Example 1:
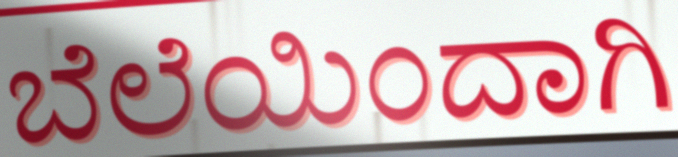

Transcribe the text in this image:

ಬೆಲೆಯಿಂದಾಗಿ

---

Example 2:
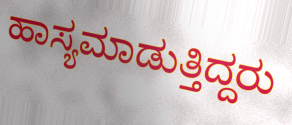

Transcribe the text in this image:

ಹಾಸ್ಯಮಾಡುತ್ತಿದ್ದರು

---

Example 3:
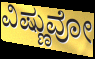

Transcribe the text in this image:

ವಿಷ್ಣುವೋ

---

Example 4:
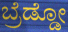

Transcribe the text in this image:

ಬ್ರೆಡ್ಡೋ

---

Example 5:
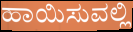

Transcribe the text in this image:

ಹಾಯಿಸುವಲ್ಲಿ